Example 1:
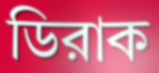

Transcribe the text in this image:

ডিরাক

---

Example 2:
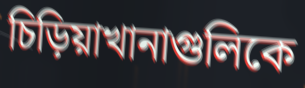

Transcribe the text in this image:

চিড়িয়াখানাগুলিকে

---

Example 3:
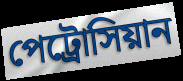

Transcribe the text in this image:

পেট্রোসিয়ান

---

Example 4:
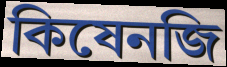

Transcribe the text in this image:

কিষেনজি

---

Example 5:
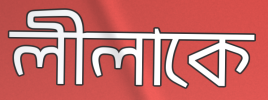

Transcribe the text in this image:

লীলাকে